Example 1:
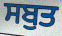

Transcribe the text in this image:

ਸਬੁਤ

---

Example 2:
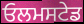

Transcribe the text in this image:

ਓਲਮਸਟੇਡ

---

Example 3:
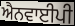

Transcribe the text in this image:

ਐਨਵਾਈਪੀ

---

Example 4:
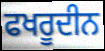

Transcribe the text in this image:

ਫਖਰੂਦੀਨ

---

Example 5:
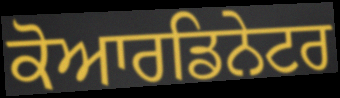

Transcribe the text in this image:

ਕੋਆਰਡਿਨੇਟਰ